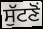
ਸੁੱਟਣੋਂ